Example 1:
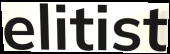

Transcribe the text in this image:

elitist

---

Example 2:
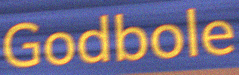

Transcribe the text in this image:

Godbole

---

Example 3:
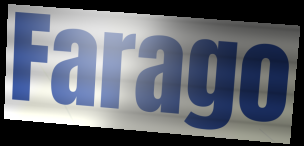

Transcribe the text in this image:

Farago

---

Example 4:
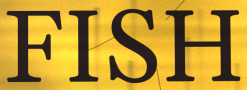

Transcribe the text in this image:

FISH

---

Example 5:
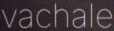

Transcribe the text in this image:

vachale